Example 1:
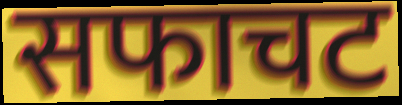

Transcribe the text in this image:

सफाचट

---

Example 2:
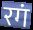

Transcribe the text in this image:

रगं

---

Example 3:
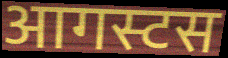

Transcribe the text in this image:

आगस्टस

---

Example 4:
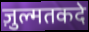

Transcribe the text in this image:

ज़ुल्मतकदे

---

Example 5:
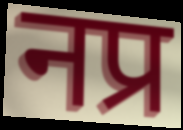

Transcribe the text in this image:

नप्र